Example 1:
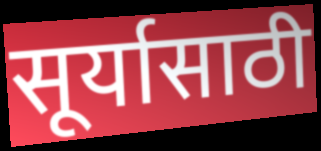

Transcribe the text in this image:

सूर्यासाठी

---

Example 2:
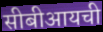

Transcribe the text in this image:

सीबीआयची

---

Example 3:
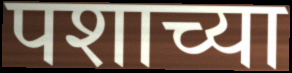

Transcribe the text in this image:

पशाच्या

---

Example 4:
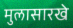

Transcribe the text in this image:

मुलासारखे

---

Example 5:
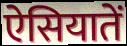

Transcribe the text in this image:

ऐसियातें